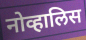
नोव्हालिस